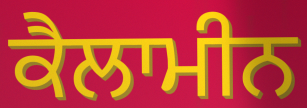
ਕੈਲਾਮੀਨ